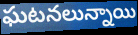
ఘటనలున్నాయి